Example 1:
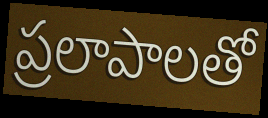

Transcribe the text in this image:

ప్రలాపాలతో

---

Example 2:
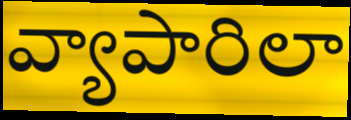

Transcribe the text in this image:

వ్యాపారిలా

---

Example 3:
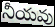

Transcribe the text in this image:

నీయవు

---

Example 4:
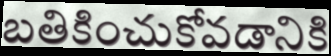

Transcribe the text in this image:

బతికించుకోవడానికి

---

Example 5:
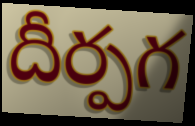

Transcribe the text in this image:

దీర్పగ